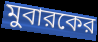
মুবারকের